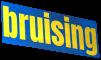
bruising